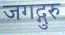
जगद्गुरु